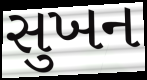
સુખન